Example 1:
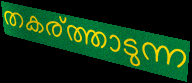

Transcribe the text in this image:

തകര്ത്താടുന്ന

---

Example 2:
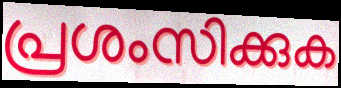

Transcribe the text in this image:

പ്രശംസിക്കുക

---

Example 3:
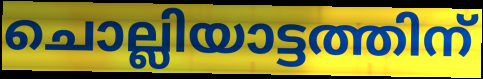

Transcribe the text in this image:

ചൊല്ലിയാട്ടത്തിന്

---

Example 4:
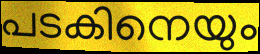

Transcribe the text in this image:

പടകിനെയും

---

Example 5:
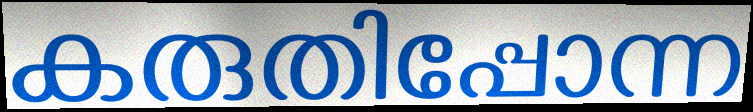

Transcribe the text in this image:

കരുതിപ്പോന്ന